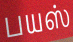
பயஸ்